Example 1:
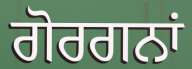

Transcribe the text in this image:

ਗੋਰਗਨਾਂ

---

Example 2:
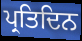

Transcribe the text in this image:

ਪ੍ਰਤਿਦਿਨ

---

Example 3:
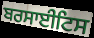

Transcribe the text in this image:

ਬਰਸਾਈਟਿਸ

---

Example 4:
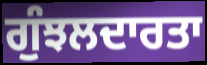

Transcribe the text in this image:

ਗੁੰਝਲਦਾਰਤਾ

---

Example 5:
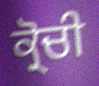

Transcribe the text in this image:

ਕ੍ਰੋਚੀ